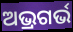
ଅଭ୍ରଗର୍ଭ